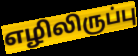
எழிலிருப்பு